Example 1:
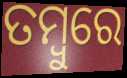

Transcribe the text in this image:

ତମ୍ବୁରେ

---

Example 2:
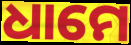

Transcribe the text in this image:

ଧାମେ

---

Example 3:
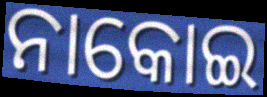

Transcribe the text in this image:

ନାକୋଇ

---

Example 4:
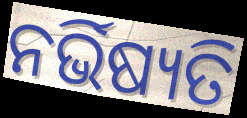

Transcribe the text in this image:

ନର୍ଭିଷ୍ୟତି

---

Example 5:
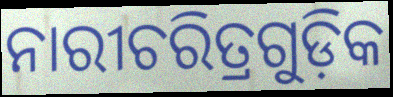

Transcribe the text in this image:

ନାରୀଚରିତ୍ରଗୁଡ଼ିକ